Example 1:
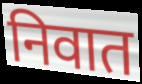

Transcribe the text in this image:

निवात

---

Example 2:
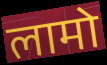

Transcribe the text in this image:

लामो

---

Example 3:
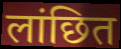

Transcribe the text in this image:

लांछित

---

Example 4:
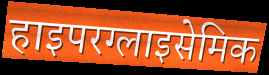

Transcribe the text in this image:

हाइपरग्लाइसेमिक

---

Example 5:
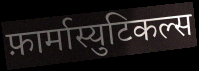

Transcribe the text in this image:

फ़ार्मास्युटिकल्स